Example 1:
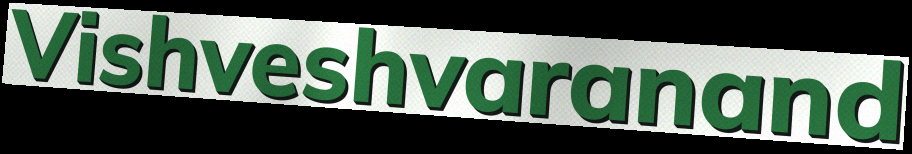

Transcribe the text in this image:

Vishveshvaranand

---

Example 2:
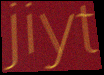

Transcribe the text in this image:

jiyt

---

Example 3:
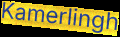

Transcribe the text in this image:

Kamerlingh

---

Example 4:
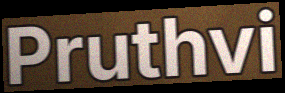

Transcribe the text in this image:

Pruthvi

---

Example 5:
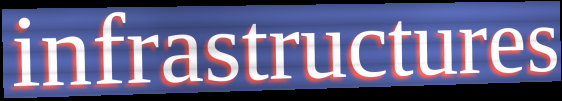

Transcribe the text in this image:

infrastructures